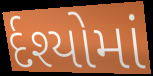
ર્દશ્યોમાં